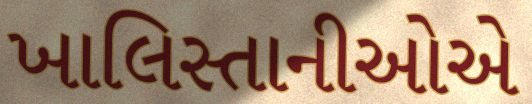
ખાલિસ્તાનીઓએ